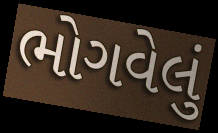
ભોગવેલું